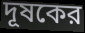
দূষকের